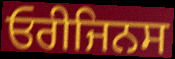
ਓਰੀਜਿਨਸ